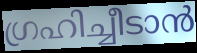
ഗ്രഹിച്ചീടാൻ